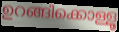
ഉറങ്ങിക്കൊള്ളൂ